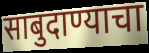
साबुदाण्याचा